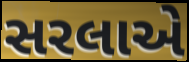
સરલાએ